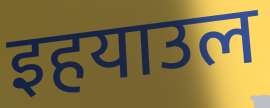
इहयाउल